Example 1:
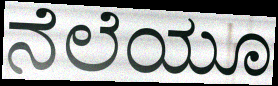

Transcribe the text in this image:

ನೆಲೆಯೂ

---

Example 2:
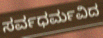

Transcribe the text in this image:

ಸರ್ವಧರ್ಮವಿದ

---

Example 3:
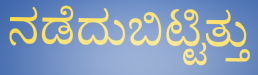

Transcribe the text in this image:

ನಡೆದುಬಿಟ್ಟಿತ್ತು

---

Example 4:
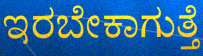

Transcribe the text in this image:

ಇರಬೇಕಾಗುತ್ತೆ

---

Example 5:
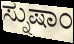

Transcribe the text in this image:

ಸ್ನುಷಾಂ